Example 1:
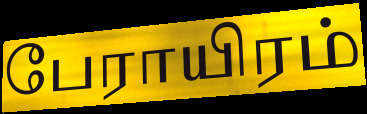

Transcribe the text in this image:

பேராயிரம்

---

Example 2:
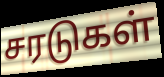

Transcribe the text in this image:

சரடுகள்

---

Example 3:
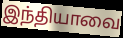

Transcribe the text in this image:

இந்தியாவை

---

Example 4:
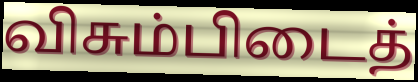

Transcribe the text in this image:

விசும்பிடைத்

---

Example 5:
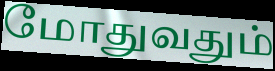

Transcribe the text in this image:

மோதுவதும்